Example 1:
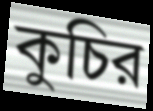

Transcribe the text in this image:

কুচির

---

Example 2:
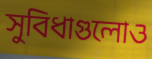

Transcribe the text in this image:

সুবিধাগুলোও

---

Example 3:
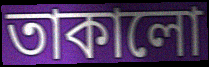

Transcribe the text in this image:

তাকালো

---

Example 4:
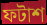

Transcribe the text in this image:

ফটাশ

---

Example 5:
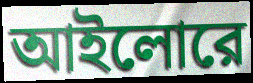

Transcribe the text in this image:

আইলোরে